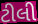
ટીલી